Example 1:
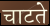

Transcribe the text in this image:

चाटते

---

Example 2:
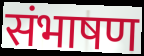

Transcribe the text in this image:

संभाषण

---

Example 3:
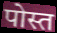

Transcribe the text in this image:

पोस्त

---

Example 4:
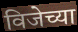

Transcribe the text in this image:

विजेच्या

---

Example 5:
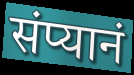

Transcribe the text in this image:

संप्यानं